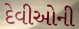
દેવીઓની